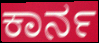
ಕಾರ್ನ